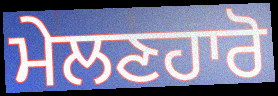
ਮੇਲਣਹਾਰੋ